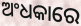
ଅଂଧକାରେ